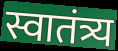
स्वातंत्र्य